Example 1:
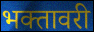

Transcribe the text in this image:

भक्तावरी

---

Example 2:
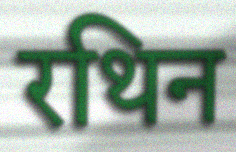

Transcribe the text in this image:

रथिन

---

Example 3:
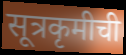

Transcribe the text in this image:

सूत्रकृमीची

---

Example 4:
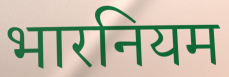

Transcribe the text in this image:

भारनियम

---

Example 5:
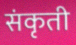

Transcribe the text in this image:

संकृती